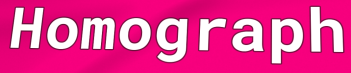
Homograph